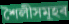
শৈলীসমূহৰ